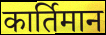
कार्तिमान